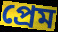
প্ৰেম